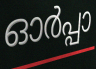
ഓർപ്പാ